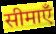
सीमाएँ